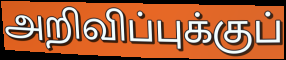
அறிவிப்புக்குப்